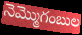
నెమ్మొగంబుల